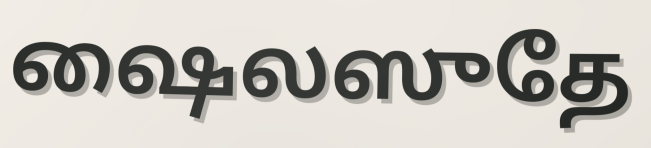
ஷைலஸுதே